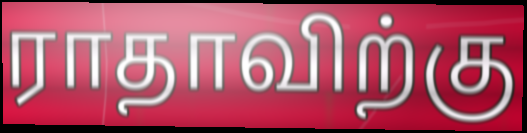
ராதாவிற்கு